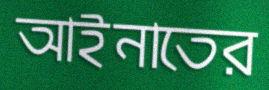
আইনাতের